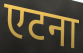
एटना